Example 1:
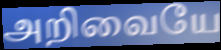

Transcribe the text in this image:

அறிவையே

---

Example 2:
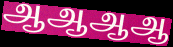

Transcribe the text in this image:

ஆஆஆஆ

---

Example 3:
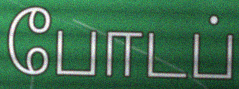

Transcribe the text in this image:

போடப்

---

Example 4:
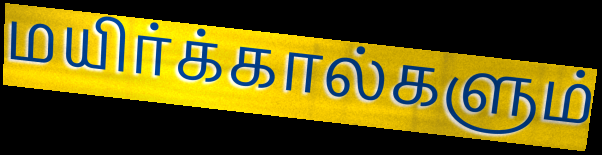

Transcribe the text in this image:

மயிர்க்கால்களும்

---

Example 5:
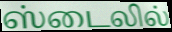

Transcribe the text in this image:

ஸ்டைலில்